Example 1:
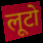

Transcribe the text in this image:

लूटो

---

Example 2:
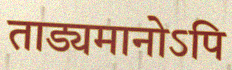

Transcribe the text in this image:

ताड्यमानोऽपि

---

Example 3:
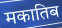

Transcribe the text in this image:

मकातिब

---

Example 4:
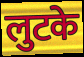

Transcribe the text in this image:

लुटके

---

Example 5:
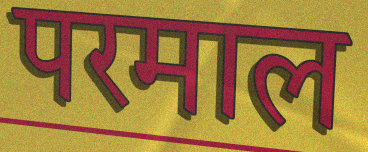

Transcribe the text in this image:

परमाल